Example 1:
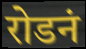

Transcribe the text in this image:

रोडनं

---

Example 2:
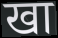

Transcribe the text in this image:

खा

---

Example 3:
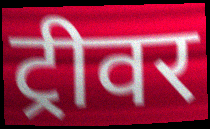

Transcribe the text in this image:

ट्रीवर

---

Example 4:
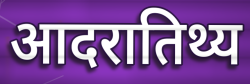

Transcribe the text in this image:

आदरातिथ्य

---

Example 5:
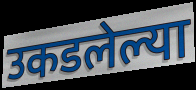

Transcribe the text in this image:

उकडलेल्या